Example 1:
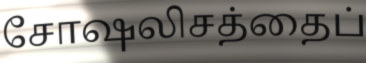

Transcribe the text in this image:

சோஷலிசத்தைப்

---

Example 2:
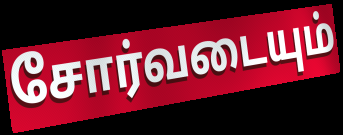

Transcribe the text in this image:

சோர்வடையும்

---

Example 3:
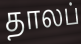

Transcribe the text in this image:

தாலப்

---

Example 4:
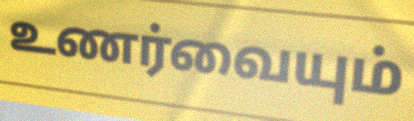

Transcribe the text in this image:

உணர்வையும்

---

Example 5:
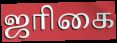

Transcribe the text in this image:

ஜரிகை